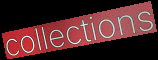
collections